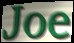
Joe